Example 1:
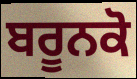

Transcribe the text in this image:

ਬਰੂਨਕੋ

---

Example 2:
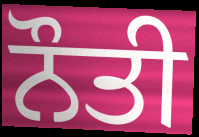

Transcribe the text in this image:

ਨੌਤੀ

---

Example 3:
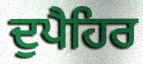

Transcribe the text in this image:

ਦੁਪੈਹਿਰ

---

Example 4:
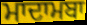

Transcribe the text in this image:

ਮਾਦਾਮਬਾ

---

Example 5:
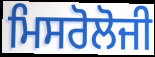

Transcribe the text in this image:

ਮਿਸਰੋਲੋਜੀ